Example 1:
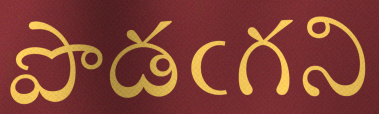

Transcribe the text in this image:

పొడఁగని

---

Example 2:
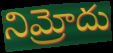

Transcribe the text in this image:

నిమ్రోదు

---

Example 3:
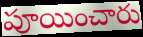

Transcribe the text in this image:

పూయించారు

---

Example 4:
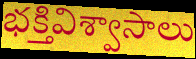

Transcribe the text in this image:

భక్తివిశ్వాసాలు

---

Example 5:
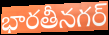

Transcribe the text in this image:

భారతీనగర్